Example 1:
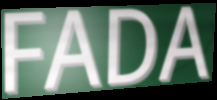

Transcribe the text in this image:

FADA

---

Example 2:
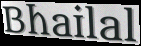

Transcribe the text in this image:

Bhailal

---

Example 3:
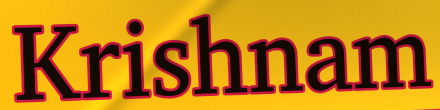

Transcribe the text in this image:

Krishnam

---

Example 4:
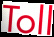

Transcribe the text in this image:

Toll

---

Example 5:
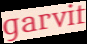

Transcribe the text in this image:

garvit